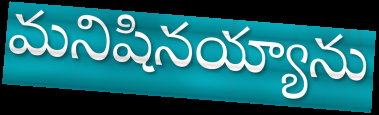
మనిషినయ్యాను